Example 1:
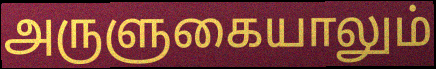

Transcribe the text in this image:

அருளுகையாலும்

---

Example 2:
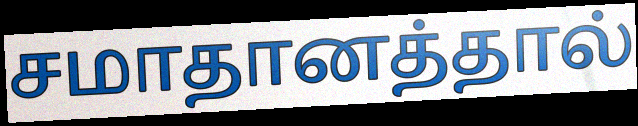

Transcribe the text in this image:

சமாதானத்தால்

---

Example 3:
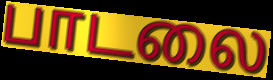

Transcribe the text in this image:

பாடலை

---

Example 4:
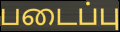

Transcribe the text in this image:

படைப்பு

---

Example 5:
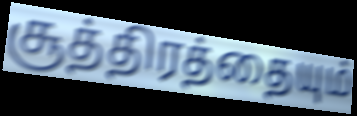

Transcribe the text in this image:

சூத்திரத்தையும்